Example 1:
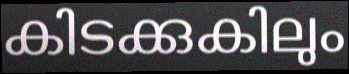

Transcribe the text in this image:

കിടക്കുകിലും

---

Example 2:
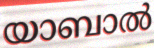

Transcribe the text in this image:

യാബാൽ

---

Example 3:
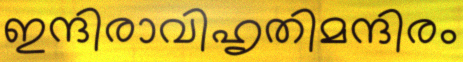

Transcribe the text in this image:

ഇന്ദിരാവിഹൃതിമന്ദിരം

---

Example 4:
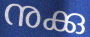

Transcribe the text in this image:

നുക്കു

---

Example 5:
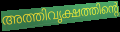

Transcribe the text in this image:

അത്തിവൃക്ഷത്തിന്റെ